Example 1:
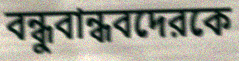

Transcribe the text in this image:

বন্ধুবান্ধবদেরকে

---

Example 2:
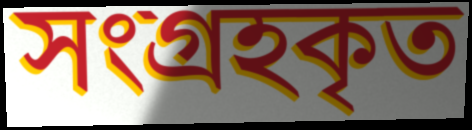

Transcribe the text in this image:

সংগ্রহকৃত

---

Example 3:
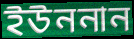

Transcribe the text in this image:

ইউননান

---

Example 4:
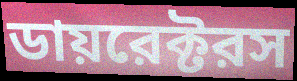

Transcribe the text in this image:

ডায়রেক্টরস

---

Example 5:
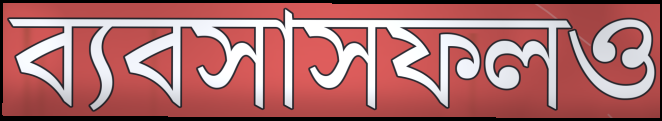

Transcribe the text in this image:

ব্যবসাসফলও